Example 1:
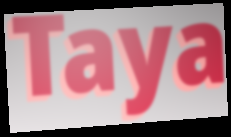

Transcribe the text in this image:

Taya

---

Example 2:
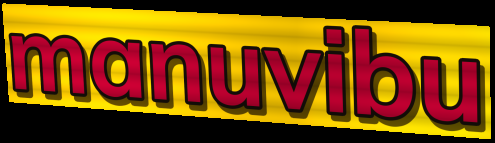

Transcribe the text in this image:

manuvibu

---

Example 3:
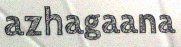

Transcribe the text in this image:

azhagaana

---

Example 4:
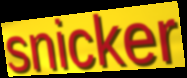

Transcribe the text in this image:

snicker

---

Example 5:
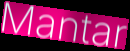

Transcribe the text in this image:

Mantar